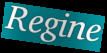
Regine